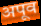
अपूव